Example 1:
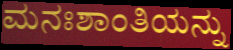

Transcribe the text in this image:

ಮನಃಶಾಂತಿಯನ್ನು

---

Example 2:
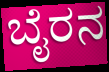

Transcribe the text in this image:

ಬೈರನ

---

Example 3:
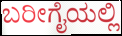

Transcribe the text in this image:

ಬರೀಗೈಯಲ್ಲಿ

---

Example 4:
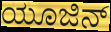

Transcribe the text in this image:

ಯೂಜಿನ್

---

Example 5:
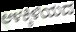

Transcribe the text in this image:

ಆಳಕ್ಕಿಳಿಯದ